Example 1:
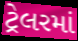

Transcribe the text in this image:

ટ્રેલરમાં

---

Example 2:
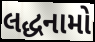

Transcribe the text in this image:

લદ્ધનામો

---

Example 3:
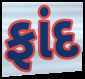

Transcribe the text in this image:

ફાંદ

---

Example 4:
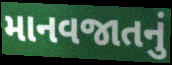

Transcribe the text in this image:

માનવજાતનું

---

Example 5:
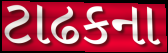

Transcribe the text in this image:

ટાઢકના